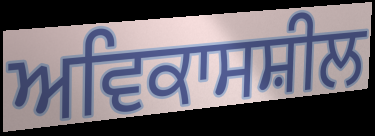
ਅਵਿਕਾਸਸ਼ੀਲ